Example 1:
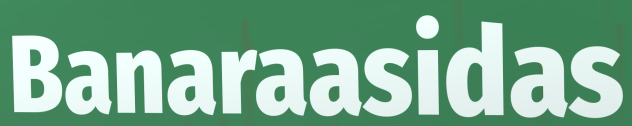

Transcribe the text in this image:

Banaraasidas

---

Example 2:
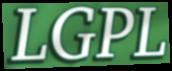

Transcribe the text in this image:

LGPL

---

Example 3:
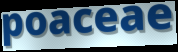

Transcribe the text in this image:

poaceae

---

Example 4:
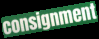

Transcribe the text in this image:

consignment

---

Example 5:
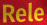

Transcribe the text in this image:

Rele